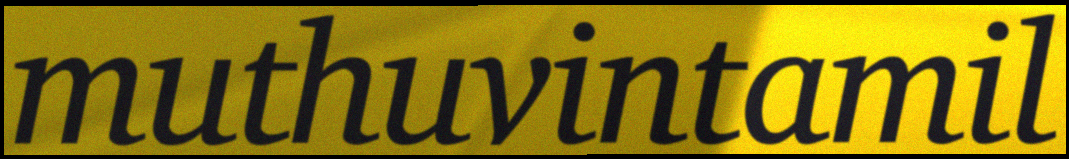
muthuvintamil